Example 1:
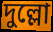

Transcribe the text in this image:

দুল্লো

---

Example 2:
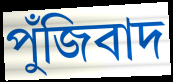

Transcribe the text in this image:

পুঁজিবাদ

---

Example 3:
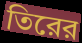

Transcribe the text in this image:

তিরের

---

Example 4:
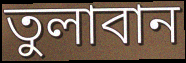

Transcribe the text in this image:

তুলাবান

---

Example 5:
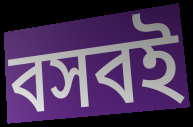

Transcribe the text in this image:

বসবই